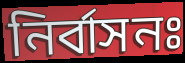
নির্বাসনঃ